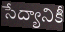
సేద్యానికీ